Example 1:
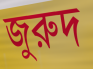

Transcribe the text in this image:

জুরুদ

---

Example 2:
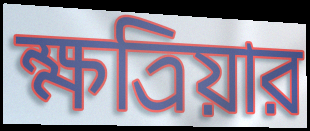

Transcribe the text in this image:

ক্ষত্রিয়ার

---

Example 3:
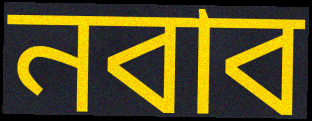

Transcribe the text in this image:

নবাব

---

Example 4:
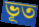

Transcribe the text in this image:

ভূত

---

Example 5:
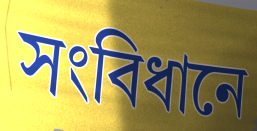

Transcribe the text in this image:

সংবিধানে